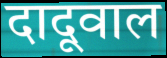
दादूवाल